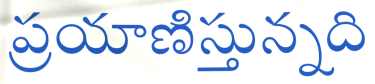
ప్రయాణిస్తున్నది